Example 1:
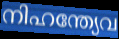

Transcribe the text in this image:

നിഹന്ത്യേവ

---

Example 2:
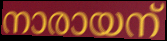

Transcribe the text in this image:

നാരായന്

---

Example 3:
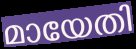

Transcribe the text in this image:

മായേതി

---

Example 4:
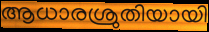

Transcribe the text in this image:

ആധാരശ്രുതിയായി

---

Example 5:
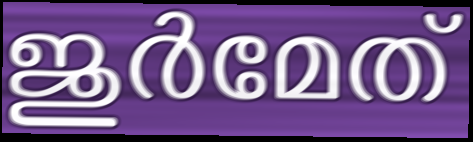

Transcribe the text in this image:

ജുർമേത്